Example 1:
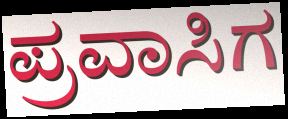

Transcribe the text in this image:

ಪ್ರವಾಸಿಗ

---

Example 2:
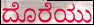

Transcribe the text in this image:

ದೊರೆಯು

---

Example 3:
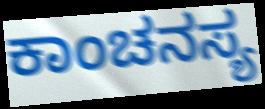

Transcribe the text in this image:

ಕಾಂಚನಸ್ಯ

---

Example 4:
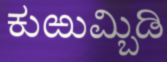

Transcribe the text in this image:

ಕುಱುಮ್ಬಿಡಿ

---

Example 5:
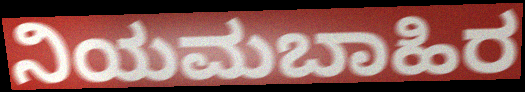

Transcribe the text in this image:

ನಿಯಮಬಾಹಿರ